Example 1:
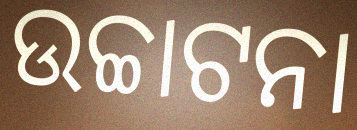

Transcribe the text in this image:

ଉଚ୍ଚାଟନା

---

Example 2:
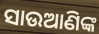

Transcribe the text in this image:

ସାଉଆଣିଙ୍କ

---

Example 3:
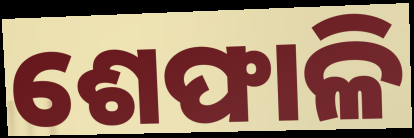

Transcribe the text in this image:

ଶେଫାଳି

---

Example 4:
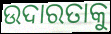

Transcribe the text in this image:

ଉଦାରତାକୁ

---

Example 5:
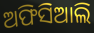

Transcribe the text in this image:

ଅଫିସିଆଲି